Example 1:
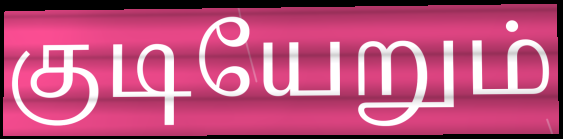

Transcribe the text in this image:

குடியேறும்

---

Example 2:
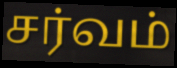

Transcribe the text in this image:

சர்வம்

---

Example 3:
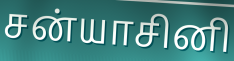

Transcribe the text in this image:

சன்யாசினி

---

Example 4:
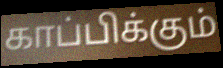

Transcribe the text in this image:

காப்பிக்கும்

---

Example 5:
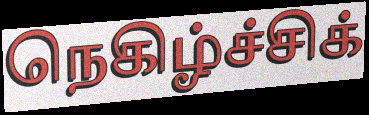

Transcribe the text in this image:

நெகிழ்ச்சிக்